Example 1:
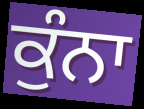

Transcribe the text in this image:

ਕੁੰਨਾ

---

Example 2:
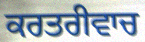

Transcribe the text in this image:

ਕਰਤਰੀਵਾਚ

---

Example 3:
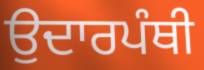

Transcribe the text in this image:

ਉਦਾਰਪੰਥੀ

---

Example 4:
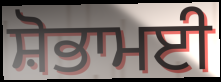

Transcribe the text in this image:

ਸ਼ੋਭਾਮਈ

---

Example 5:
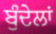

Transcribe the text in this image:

ਬੁੰਦੇਲਾਂ